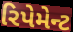
રિપેમેન્ટ